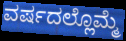
ವರ್ಷದಲ್ಲೊಮ್ಮೆ